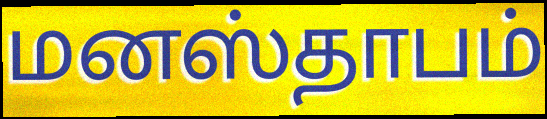
மனஸ்தாபம்